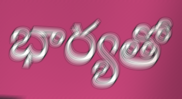
భార్యతో